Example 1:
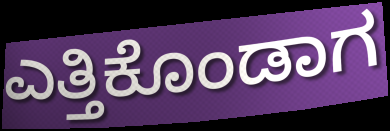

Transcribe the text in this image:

ಎತ್ತಿಕೊಂಡಾಗ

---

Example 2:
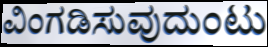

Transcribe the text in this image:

ವಿಂಗಡಿಸುವುದುಂಟು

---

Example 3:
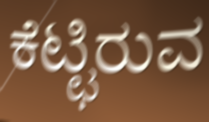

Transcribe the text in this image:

ಕೆಟ್ಟಿರುವ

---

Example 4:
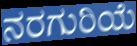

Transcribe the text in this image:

ನರಗುರಿಯೆ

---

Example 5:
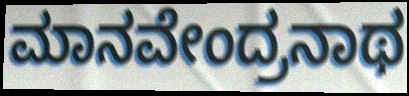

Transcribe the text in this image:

ಮಾನವೇಂದ್ರನಾಥ